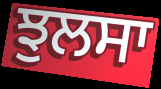
ਝੁਲਸਾ